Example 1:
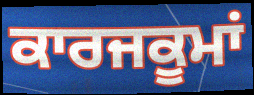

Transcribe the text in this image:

ਕਾਰਜਕੂਮਾਂ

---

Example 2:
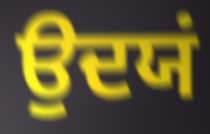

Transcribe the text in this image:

ਉਦਯਂ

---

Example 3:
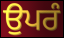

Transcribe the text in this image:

ਉਪਰੰ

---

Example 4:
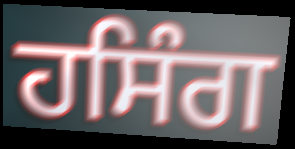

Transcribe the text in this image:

ਹਸਿੰਗ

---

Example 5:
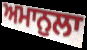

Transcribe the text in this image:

ਅਮਾਨੁਲਾ